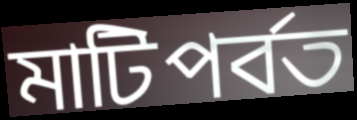
মাটিপৰ্বত